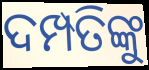
ଦମ୍ପତିଙ୍କୁ